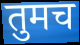
तुमच